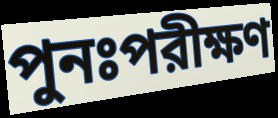
পুনঃপরীক্ষণ